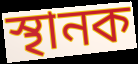
স্থানক